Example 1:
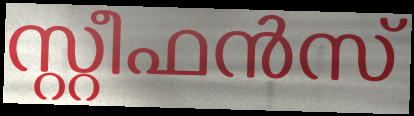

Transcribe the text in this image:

സ്റ്റീഫൻസ്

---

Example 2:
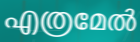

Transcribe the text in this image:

എത്രമേൽ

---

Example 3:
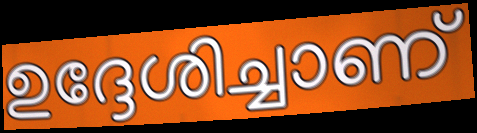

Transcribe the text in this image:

ഉദ്ദേശിച്ചാണ്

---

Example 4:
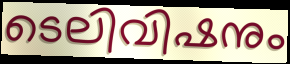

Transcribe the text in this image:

ടെലിവിഷനും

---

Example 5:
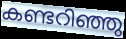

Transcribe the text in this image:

കണ്ടറിഞ്ഞു